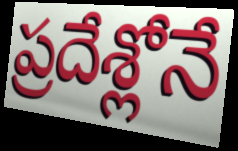
ప్రదేశ్లోనే